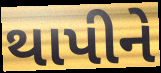
થાપીને